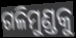
ଗଳିମୁଣ୍ଡକୁ